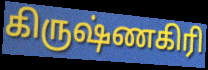
கிருஷ்ணகிரி